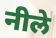
नीले